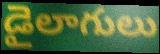
డైలాగులు